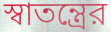
স্বাতন্ত্রের